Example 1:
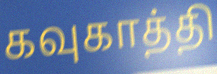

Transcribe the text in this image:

கவுகாத்தி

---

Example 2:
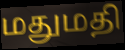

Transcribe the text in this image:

மதுமதி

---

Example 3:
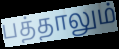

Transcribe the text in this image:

பத்தாலும்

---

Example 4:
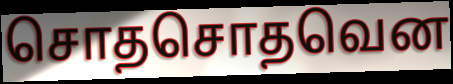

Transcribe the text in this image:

சொதசொதவென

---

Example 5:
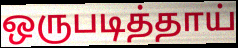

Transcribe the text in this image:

ஒருபடித்தாய்